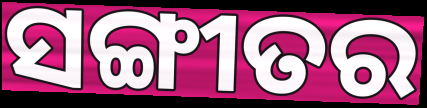
ସଙ୍ଗୀତର